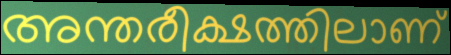
അന്തരീക്ഷത്തിലാണ്